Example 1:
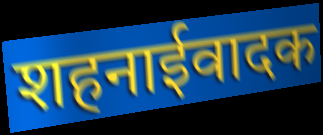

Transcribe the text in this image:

शहनाईवादक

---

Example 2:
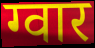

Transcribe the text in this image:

ग्वार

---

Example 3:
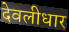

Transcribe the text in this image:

देवलीधार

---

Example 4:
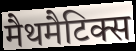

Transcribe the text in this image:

मैथमैटिक्स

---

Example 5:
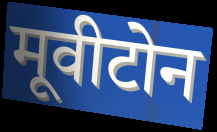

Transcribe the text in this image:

मूवीटोन